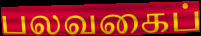
பலவகைப்